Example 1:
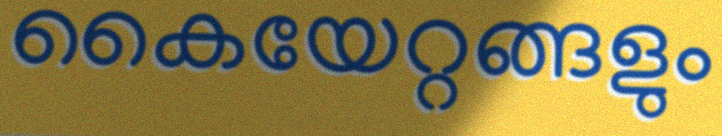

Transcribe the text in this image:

കൈയേറ്റങ്ങളും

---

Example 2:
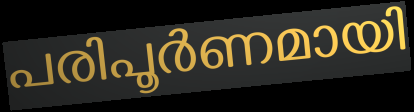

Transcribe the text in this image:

പരിപൂർണമായി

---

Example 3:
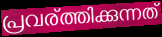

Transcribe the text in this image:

പ്രവര്ത്തിക്കുന്നത്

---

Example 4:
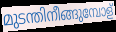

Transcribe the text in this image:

മുടന്തിനീങ്ങുമ്പോള്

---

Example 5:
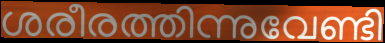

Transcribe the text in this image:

ശരീരത്തിന്നുവേണ്ടി